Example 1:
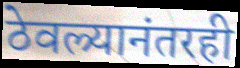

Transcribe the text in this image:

ठेवल्यानंतरही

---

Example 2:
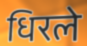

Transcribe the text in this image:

धिरले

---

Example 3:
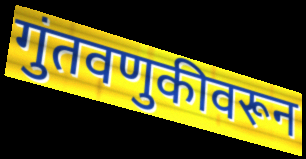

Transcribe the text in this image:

गुंतवणुकीवरून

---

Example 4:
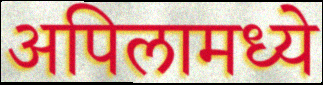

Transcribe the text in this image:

अपिलामध्ये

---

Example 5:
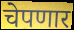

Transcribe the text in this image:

चेपणार